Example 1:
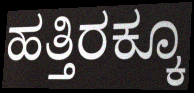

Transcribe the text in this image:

ಹತ್ತಿರಕ್ಕೂ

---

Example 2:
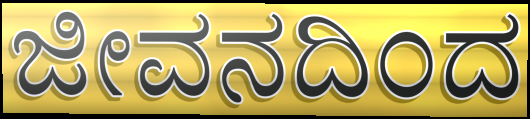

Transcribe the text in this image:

ಜೀವನದಿಂದ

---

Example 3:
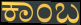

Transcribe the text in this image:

ಕಾಂಬ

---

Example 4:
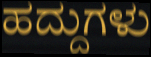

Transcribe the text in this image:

ಹದ್ದುಗಳು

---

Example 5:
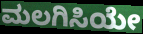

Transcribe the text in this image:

ಮಲಗಿಸಿಯೇ